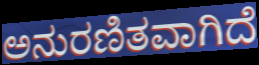
ಅನುರಣಿತವಾಗಿದೆ